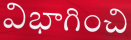
విభాగించి